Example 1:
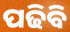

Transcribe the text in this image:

ପଢିବି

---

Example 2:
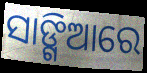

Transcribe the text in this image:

ସାଙ୍ଗିଆରେ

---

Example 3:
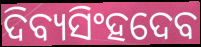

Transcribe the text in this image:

ଦିବ୍ୟସିଂହଦେବ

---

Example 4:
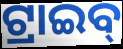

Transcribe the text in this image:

ଟ୍ରାଇବ୍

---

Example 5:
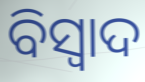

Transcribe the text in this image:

ବିସ୍ୱାଦ